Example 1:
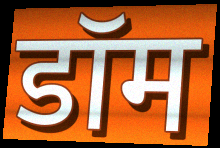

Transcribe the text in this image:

डॉम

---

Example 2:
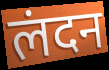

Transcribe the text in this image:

लंदन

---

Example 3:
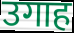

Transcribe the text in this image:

उगाह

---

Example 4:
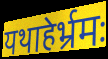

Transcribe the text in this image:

यथाहेर्भ्रमः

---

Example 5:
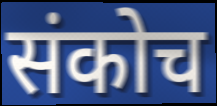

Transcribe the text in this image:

संकोच